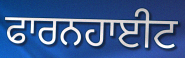
ਫਾਰਨਹਾਈਟ